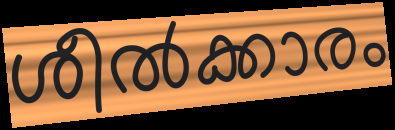
ശീൽക്കാരം